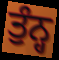
ਤੁੰਨ੍ਹ